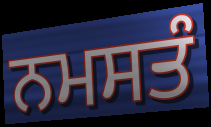
ਨਮਸਤੰ